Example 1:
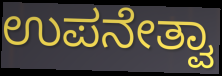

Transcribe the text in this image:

ಉಪನೇತ್ವಾ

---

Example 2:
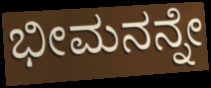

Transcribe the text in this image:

ಭೀಮನನ್ನೇ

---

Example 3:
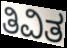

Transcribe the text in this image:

ತಿವಿತ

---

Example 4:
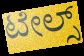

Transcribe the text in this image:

ಟೇಲ್ಸ್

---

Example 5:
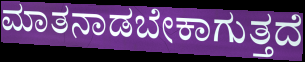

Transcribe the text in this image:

ಮಾತನಾಡಬೇಕಾಗುತ್ತದೆ